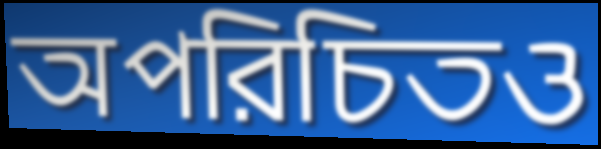
অপরিচিতও